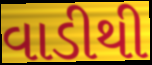
વાડીથી